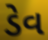
ડેવ